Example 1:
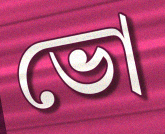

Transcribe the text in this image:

ভো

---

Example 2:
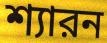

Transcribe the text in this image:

শ্যারন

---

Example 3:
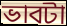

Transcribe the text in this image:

ভাবটা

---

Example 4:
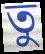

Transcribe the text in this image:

তু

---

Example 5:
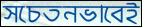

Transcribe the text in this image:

সচেতনভাবেই